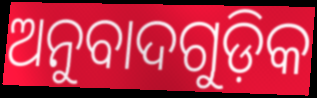
ଅନୁବାଦଗୁଡ଼ିକ